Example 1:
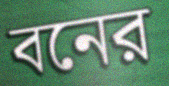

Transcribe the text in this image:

বনের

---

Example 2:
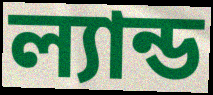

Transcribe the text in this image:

ল্যান্ড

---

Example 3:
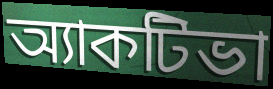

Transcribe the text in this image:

অ্যাকটিভা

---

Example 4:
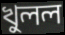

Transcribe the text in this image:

খুলল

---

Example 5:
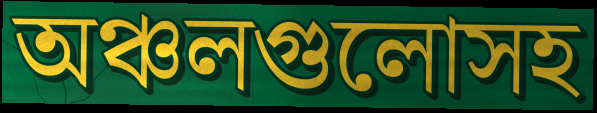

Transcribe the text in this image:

অঞ্চলগুলোসহ